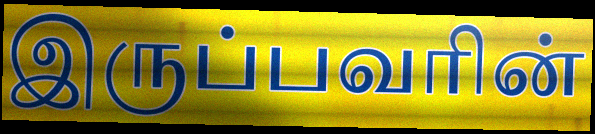
இருப்பவரின்